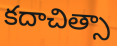
కదాచిత్సా